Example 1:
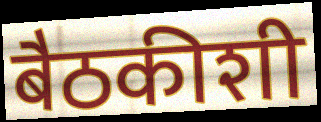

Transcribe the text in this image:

बैठकीशी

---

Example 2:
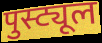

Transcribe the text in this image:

पुस्ट्यूल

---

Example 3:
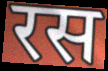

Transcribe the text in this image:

रस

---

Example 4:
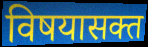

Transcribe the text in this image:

विषयासक्त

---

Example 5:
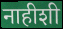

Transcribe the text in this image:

नाहीशी